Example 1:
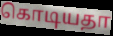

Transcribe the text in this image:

கொடியதா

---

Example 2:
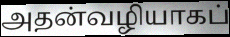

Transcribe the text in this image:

அதன்வழியாகப்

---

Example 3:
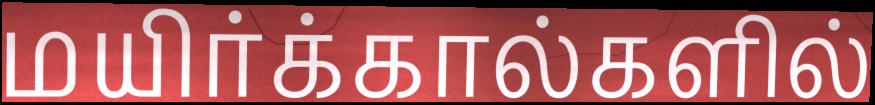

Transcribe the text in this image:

மயிர்க்கால்களில்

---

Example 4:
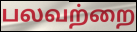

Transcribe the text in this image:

பலவற்றை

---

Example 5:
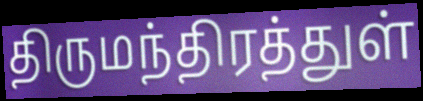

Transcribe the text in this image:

திருமந்திரத்துள்